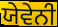
ਯੇਵੇਨੀ